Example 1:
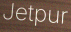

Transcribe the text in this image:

Jetpur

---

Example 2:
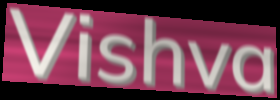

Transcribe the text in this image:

Vishva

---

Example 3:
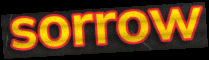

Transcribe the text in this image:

sorrow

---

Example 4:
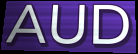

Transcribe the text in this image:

AUD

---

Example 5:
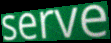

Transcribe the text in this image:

serve